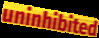
uninhibited